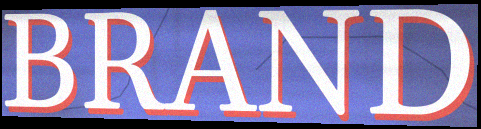
BRAND